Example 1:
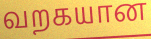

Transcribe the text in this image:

வறகயான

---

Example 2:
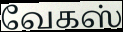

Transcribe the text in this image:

வேகஸ்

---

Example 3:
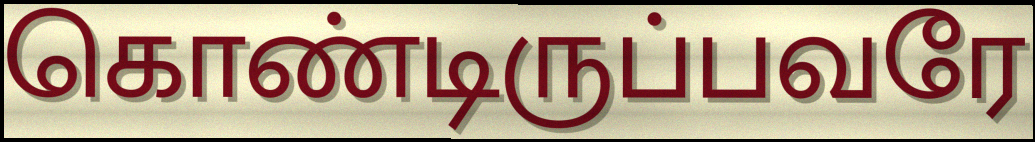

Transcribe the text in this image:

கொண்டிருப்பவரே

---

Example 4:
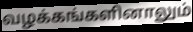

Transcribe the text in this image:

வழக்கங்களினாலும்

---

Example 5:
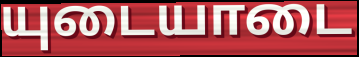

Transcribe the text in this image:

யுடையாடை